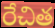
రేచిత